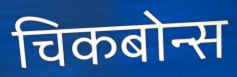
चिकबोन्स